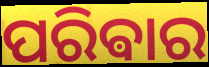
ପରିଵାର